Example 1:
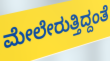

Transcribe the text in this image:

ಮೇಲೇರುತ್ತಿದ್ದಂತೆ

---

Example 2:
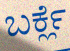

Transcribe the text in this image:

ಬರ್ಕ್ಲೆ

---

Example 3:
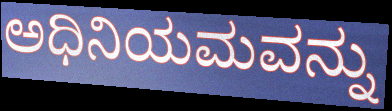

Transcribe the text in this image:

ಅಧಿನಿಯಮವನ್ನು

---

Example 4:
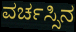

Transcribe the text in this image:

ವರ್ಚಸ್ಸಿನ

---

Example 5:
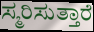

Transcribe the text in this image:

ಸ್ಮರಿಸುತ್ತಾರೆ